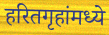
हरितगृहांमध्ये